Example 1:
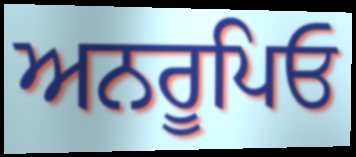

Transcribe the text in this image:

ਅਨਰੂਪਿਓ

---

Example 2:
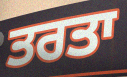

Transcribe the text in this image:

ਤਰਤਾ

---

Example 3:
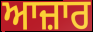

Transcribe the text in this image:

ਆਜ਼ਾਰ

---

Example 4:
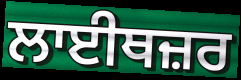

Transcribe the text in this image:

ਲਾਈਥਜ਼ਰ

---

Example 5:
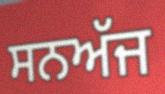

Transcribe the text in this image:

ਸਨਅੱਜ